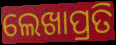
ଲେଖାପ୍ରତି